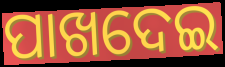
ପାଖଦେଇ